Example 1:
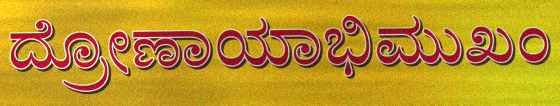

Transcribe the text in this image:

ದ್ರೋಣಾಯಾಭಿಮುಖಂ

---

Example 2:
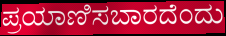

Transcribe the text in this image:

ಪ್ರಯಾಣಿಸಬಾರದೆಂದು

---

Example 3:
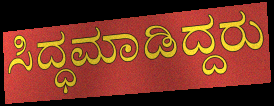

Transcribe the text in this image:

ಸಿದ್ಧಮಾಡಿದ್ದರು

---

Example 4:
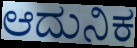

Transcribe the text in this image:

ಆದುನಿಕ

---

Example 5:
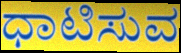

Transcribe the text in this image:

ಧಾಟಿಸುವ